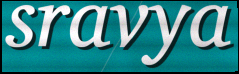
sravya